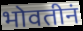
भोवतीनं